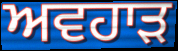
ਅਵਹਾੜ